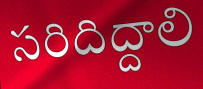
సరిదిద్దాలి